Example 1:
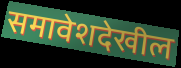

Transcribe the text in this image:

समावेशदेखील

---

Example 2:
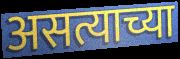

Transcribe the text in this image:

असत्याच्या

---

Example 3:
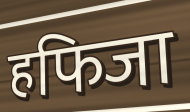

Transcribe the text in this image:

हफिजा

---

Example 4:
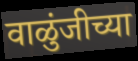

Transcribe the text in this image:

वाळुंजीच्या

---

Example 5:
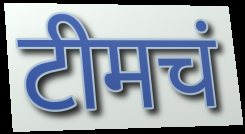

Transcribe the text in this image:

टीमचं